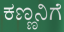
ಕಣ್ಣನಿಗೆ